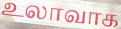
உலாவாக